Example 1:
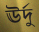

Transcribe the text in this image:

ঊর্দু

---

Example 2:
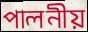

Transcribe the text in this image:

পালনীয়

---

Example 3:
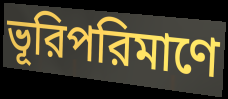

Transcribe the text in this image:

ভূরিপরিমাণে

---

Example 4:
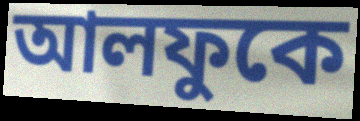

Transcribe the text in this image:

আলফুকে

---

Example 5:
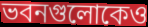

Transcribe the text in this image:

ভবনগুলোকেও